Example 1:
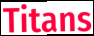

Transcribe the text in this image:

Titans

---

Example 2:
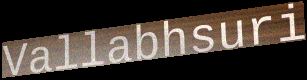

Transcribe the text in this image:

Vallabhsuri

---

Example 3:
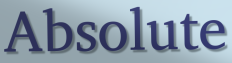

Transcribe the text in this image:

Absolute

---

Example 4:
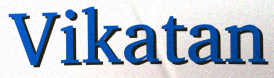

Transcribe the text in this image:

Vikatan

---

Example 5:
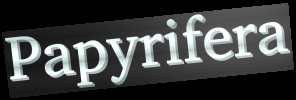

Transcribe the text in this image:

Papyrifera